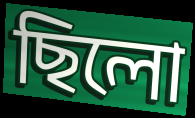
ছিলো